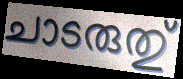
ചാടരുതു്